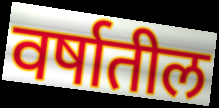
वर्षातील